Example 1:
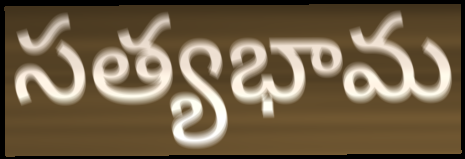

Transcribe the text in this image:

సత్యభామ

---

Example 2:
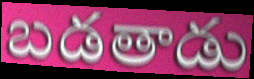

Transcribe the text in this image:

బడతాడు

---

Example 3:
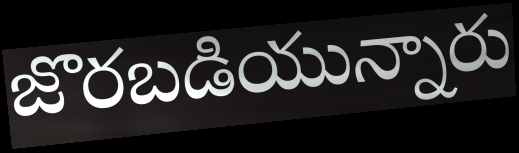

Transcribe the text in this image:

జొరబడియున్నారు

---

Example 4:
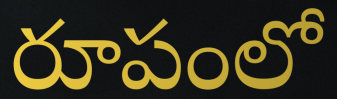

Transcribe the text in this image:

రూపంలో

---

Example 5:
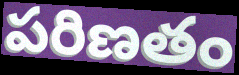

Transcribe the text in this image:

పరిణతం